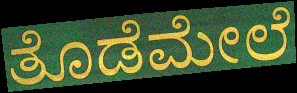
ತೊಡೆಮೇಲೆ